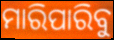
ମାରିପାରିବୁ